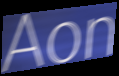
Aon